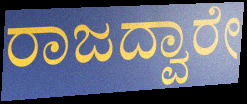
ರಾಜದ್ವಾರೇ